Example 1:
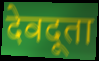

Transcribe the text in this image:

देवदूता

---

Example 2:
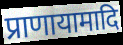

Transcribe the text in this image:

प्राणायामादि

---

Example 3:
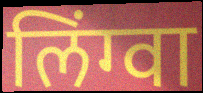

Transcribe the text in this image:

लिंग्वा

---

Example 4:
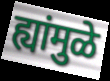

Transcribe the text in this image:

ह्यांमुळे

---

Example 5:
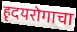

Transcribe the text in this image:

हृदयरोगाचा